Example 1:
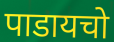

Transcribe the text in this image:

पाडायचो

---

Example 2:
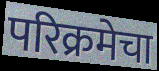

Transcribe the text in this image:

परिक्रमेचा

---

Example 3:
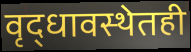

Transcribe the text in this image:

वृद्धावस्थेतही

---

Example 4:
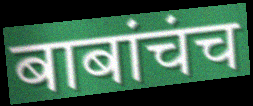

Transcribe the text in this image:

बाबांचंच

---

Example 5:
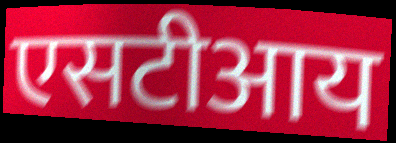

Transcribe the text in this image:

एसटीआय